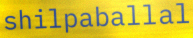
shilpaballal